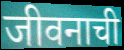
जीवनाची